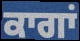
ਕਾਗਾਂ